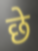
छे